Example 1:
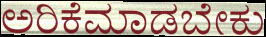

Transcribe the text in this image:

ಅರಿಕೆಮಾಡಬೇಕು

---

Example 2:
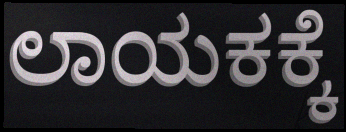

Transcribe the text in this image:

ಲಾಯಕಕ್ಕೆ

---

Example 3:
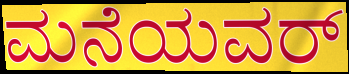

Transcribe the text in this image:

ಮನೆಯವರ್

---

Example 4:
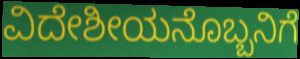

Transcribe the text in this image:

ವಿದೇಶೀಯನೊಬ್ಬನಿಗೆ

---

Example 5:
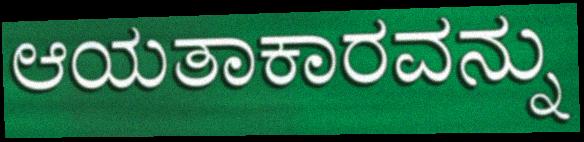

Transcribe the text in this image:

ಆಯತಾಕಾರವನ್ನು